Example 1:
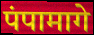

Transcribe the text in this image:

पंपामागे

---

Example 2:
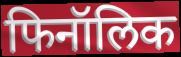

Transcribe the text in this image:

फिनॉलिक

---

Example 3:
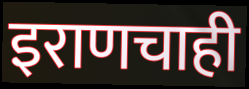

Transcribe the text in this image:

इराणचाही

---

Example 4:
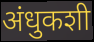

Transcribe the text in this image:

अंधुकशी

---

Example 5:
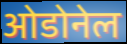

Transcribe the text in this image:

ओडोनेल